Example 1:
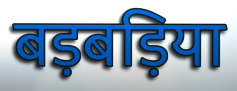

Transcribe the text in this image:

बड़बड़िया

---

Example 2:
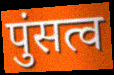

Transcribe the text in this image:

पुंसत्व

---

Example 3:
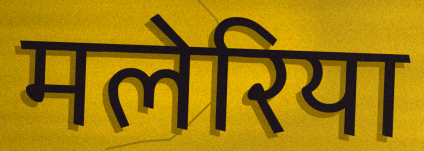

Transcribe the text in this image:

मलेरिया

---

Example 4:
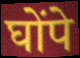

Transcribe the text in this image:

घोंपे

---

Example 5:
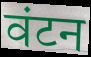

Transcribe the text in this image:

वंटन